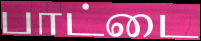
பாட்டை